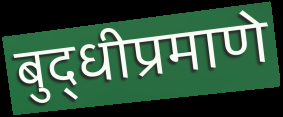
बुद्धीप्रमाणे